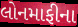
લોનમાફીના